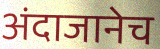
अंदाजानेच